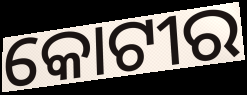
କୋଟୀର